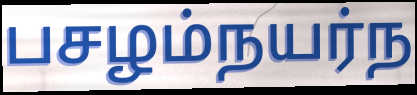
பசழம்நயர்ந